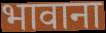
भावाना